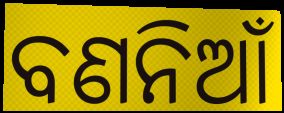
ବଣନିଆଁ